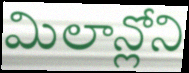
మిలాన్లోని